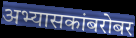
अभ्यासकांबरोबर